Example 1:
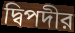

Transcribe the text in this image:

দ্বিপদীর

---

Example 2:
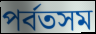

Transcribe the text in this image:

পর্বতসম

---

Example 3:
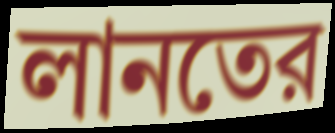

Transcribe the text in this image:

লানতের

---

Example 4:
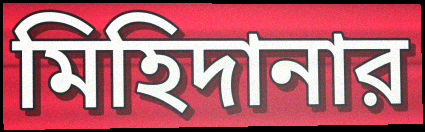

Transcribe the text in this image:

মিহিদানার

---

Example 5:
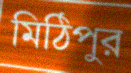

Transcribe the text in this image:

মিঠিপুর